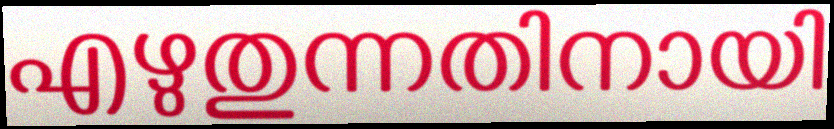
എഴുതുന്നതിനായി